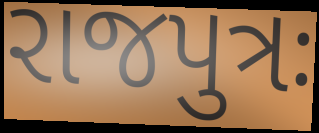
રાજપુત્રઃ